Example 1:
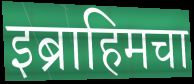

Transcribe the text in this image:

इब्राहिमचा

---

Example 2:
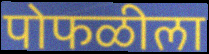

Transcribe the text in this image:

पोफळीला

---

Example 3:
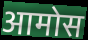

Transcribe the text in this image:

आमोस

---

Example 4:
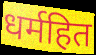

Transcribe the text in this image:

धर्महित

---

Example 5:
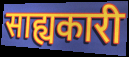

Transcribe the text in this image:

साह्यकारी